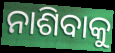
ନାଶିବାକୁ